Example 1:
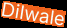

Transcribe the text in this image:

Dilwale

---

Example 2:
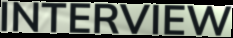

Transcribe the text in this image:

INTERVIEW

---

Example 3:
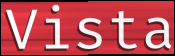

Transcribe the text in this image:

Vista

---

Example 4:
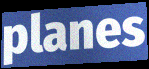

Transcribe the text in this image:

planes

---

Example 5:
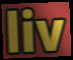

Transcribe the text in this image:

liv